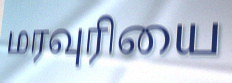
மரவுரியை